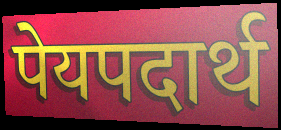
पेयपदार्थ